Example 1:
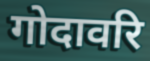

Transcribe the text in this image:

गोदावरि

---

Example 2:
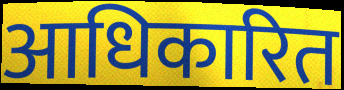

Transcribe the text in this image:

आधिकारित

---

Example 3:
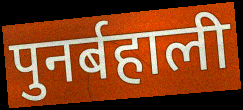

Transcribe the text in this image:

पुनर्बहाली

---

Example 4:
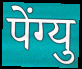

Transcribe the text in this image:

पेंग्यु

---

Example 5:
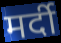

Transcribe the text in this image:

मर्दी